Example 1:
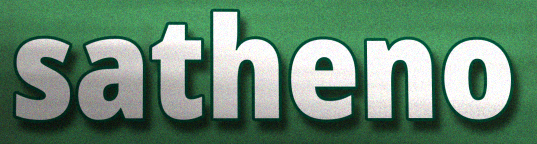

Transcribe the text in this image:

satheno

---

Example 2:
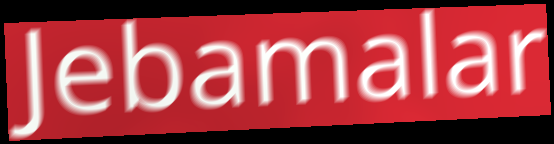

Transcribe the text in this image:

Jebamalar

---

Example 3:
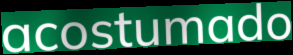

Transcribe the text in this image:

acostumado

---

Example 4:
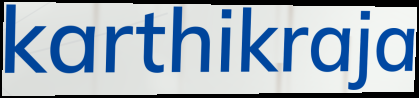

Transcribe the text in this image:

karthikraja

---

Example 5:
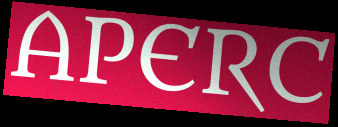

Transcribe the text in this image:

APERC